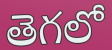
తెగలో